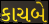
કાચબે